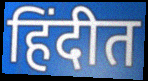
हिंदीत